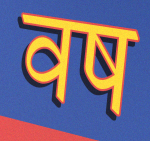
वष